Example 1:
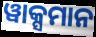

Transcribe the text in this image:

ୱାକ୍ସମାନ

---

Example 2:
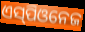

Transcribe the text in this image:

ଏସ୍‌ପିଓନେଜ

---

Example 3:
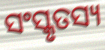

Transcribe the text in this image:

ସଂସ୍କୃତସ୍ୟ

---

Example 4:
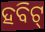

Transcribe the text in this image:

ହବିଟ୍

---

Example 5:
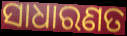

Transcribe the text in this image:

ସାଧାରଣତ